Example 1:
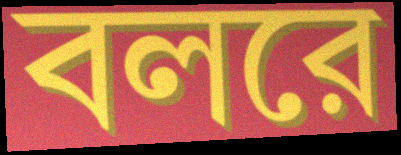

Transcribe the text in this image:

বলরে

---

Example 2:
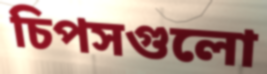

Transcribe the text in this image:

চিপসগুলো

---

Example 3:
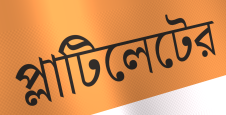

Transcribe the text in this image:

প্লাটিলেটের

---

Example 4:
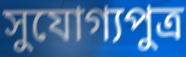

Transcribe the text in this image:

সুযোগ্যপুত্র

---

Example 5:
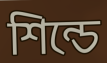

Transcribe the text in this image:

শিন্ডে